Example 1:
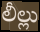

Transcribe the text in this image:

లీల్లు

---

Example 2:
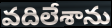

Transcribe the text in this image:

వదిలేశాను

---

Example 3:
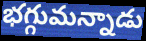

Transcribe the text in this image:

భగ్గుమన్నాడు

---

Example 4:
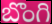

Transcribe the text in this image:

బొంగి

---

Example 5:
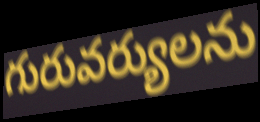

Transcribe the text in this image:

గురువర్యులను